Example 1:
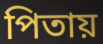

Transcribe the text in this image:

পিতায়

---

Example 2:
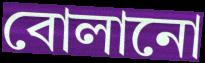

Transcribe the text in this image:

বোলানো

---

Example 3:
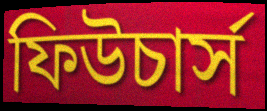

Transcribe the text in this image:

ফিউচার্স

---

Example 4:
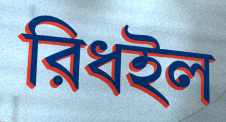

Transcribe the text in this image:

রিধইল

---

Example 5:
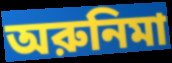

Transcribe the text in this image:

অরুনিমা